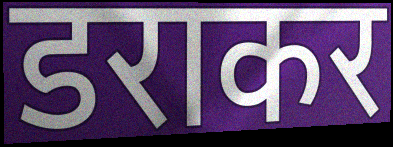
डराकर